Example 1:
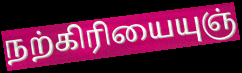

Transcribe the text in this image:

நற்கிரியையுஞ்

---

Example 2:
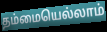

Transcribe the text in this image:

தம்மையெல்லாம்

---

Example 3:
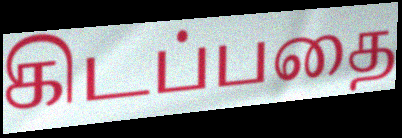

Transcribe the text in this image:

கிடப்பதை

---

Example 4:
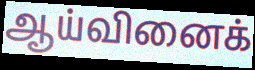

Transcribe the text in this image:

ஆய்வினைக்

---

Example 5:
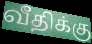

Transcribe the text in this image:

வீதிக்கு